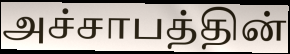
அச்சாபத்தின்